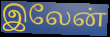
இலேன்